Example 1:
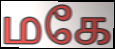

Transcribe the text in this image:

மகே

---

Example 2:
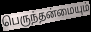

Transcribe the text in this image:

பெருந்தன்மையும்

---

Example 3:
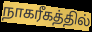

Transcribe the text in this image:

நாகரீகத்தில்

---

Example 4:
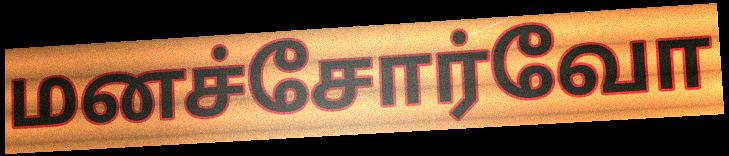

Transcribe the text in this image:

மனச்சோர்வோ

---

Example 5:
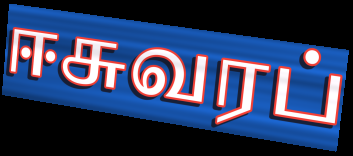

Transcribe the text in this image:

ஈசுவரப்